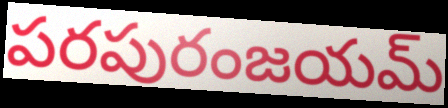
పరపురంజయమ్